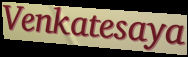
Venkatesaya